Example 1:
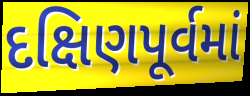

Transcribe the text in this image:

દક્ષિણપૂર્વમાં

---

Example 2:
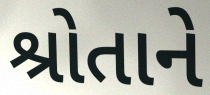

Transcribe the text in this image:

શ્રોતાને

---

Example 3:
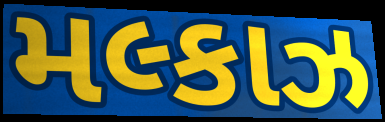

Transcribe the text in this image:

મલ્કાઝ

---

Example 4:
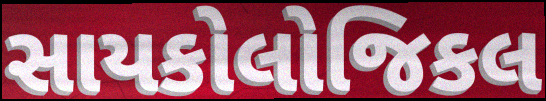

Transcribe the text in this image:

સાયકોલોજિકલ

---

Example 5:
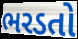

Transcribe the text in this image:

ભરડતો